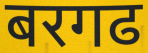
बरगढ